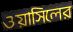
ওয়াসিলের